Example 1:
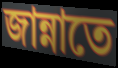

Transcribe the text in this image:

জান্নাতে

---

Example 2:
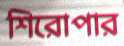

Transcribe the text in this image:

শিরোপার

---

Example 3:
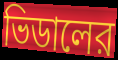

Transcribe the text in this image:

ভিডালের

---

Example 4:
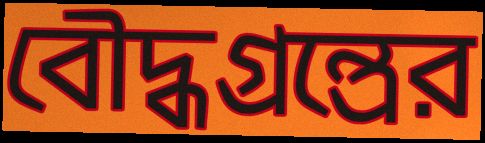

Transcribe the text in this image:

বৌদ্ধগ্রন্ত্রের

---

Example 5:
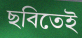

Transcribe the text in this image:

ছবিতেই